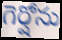
గెర్షోను